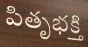
పితృభక్తి